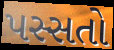
પસ્સતો